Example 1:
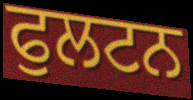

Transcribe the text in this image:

ਫੁਲਟਨ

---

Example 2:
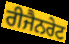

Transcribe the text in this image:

ਰੀਜੈਨਰੇਟ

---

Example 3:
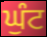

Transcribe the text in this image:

ਘੁੰਟ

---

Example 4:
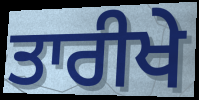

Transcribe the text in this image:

ਤਾਰੀਖੇ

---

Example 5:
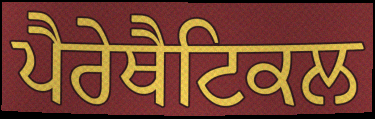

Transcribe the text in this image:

ਪੈਰੇਥੈਟਿਕਲ